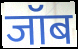
जॉब